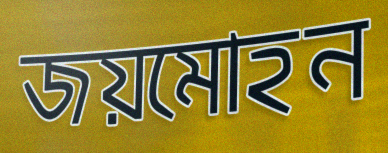
জয়মোহন